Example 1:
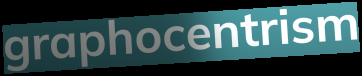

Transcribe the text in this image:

graphocentrism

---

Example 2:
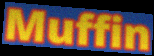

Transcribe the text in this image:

Muffin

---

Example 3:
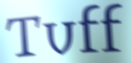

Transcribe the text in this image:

Tuff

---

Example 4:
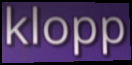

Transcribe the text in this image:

klopp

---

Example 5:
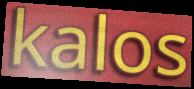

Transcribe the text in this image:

kalos